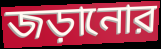
জড়ানোর